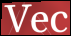
Vec